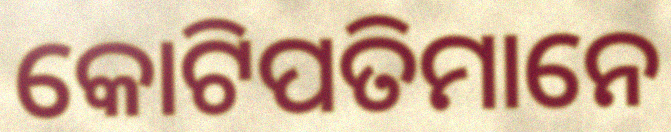
କୋଟିପତିମାନେ